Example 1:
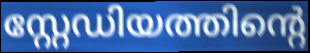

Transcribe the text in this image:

സ്റ്റേഡിയത്തിന്റെ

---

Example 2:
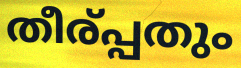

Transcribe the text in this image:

തീര്പ്പതും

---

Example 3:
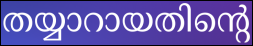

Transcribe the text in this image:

തയ്യാറായതിന്റെ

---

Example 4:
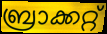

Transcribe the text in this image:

ബ്രാക്കറ്റ്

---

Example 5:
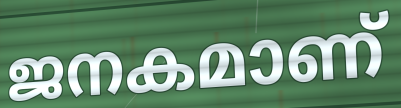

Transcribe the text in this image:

ജനകമാണ്